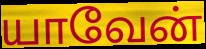
யாவேன்